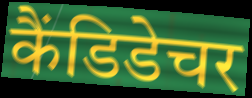
कैंडिडेचर